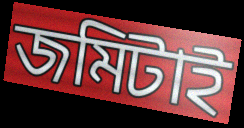
জমিটাই